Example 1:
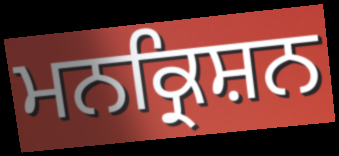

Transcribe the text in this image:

ਮਨਕ੍ਰਿਸ਼ਨ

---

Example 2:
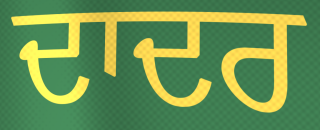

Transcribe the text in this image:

ਦਾਦਰ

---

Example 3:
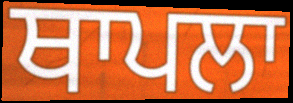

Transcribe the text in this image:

ਥਾਪਲਾ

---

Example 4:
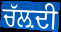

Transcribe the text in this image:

ਚੱਲ਼ਦੀ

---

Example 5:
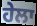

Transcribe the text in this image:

ਹੇਲਾ